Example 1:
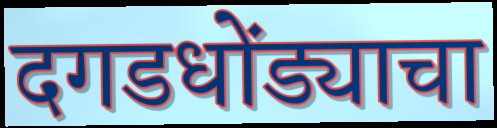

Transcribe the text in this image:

दगडधोंड्याचा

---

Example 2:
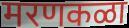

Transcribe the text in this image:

मरणकळा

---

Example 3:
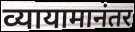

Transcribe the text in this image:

व्यायामानंतर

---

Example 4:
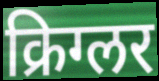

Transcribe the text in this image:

क्रिग्लर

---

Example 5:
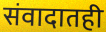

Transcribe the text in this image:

संवादातही